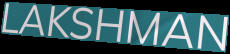
LAKSHMAN